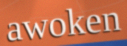
awoken